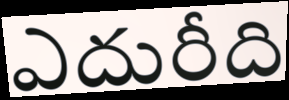
ఎదురీది